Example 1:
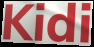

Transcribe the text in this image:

Kidi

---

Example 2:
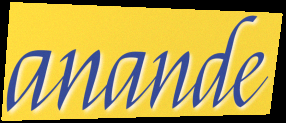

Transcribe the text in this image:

anande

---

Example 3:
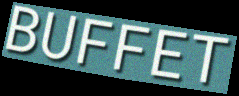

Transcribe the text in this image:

BUFFET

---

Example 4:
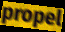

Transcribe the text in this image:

propel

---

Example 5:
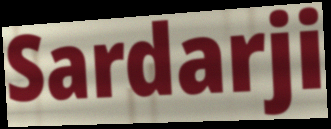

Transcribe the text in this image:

Sardarji